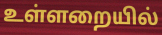
உள்ளறையில்